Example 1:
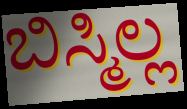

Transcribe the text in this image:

ಬಿಸ್ಮಿಲ್ಲ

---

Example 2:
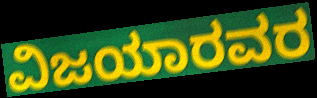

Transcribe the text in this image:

ವಿಜಯಾರವರ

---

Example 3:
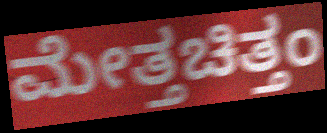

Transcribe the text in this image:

ಮೇತ್ತಚಿತ್ತಂ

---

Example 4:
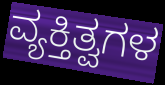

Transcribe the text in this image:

ವ್ಯಕ್ತಿತ್ವಗಳ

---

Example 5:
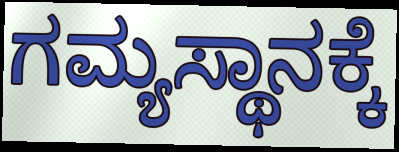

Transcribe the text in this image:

ಗಮ್ಯಸ್ಥಾನಕ್ಕೆ